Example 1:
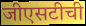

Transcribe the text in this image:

जीएसटीची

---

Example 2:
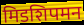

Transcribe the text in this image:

मिडशिपमन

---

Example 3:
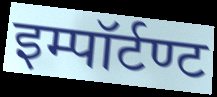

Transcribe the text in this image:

इम्पॉर्टण्ट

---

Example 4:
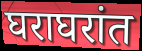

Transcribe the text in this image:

घराघरांत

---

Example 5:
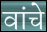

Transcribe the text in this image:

वांचे